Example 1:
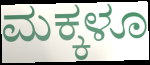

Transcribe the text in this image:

ಮಕ್ಕಳೂ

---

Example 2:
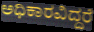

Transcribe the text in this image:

ಅಧಿಕಾರವಿದ್ದರೆ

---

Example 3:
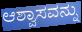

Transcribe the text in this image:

ಆಶ್ವಾಸವನ್ನು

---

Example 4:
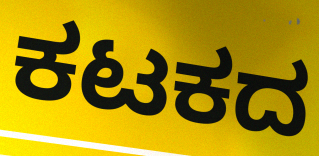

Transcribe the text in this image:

ಕಟಕದ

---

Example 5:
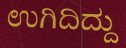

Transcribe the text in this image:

ಉಗಿದಿದ್ದು